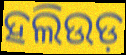
ହଲିଉଡ଼